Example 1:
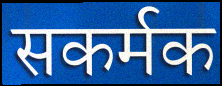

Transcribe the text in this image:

सकर्मक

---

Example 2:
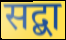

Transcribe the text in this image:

सद्बा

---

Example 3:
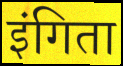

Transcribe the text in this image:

इंगिता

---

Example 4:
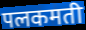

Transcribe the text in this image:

पलकमती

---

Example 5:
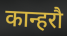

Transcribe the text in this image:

कान्हरौ